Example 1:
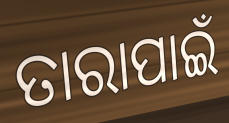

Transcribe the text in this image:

ତାରାପାଇଁ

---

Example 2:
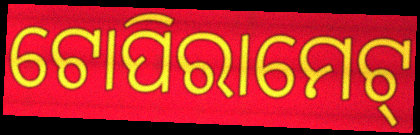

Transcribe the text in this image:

ଟୋପିରାମେଟ୍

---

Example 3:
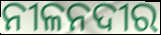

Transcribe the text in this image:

ନୀଳନଦୀର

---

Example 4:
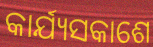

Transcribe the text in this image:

କାର୍ଯ୍ୟସକାଶେ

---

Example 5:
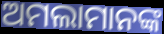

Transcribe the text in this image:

ଅମଲାମାନଙ୍କ